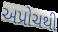
અપ્રોચથી